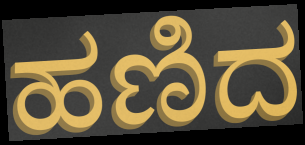
ಹಣಿದ